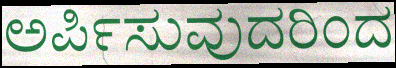
ಅರ್ಪಿಸುವುದರಿಂದ